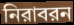
নিরাবরন